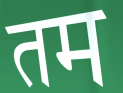
तम